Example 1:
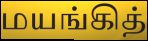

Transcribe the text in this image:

மயங்கித்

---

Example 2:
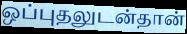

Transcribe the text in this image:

ஒப்புதலுடன்தான்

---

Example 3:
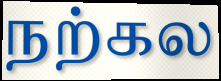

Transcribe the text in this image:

நற்கல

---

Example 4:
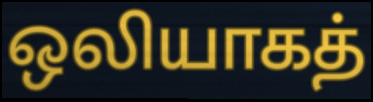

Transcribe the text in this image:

ஒலியாகத்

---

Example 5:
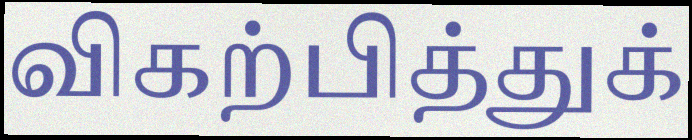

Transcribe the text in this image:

விகற்பித்துக்